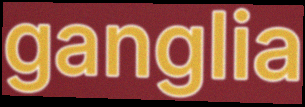
ganglia